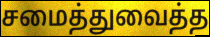
சமைத்துவைத்த